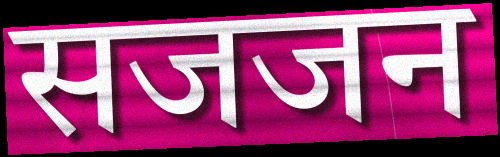
सजजन